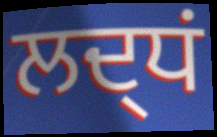
ਲਦ੍ਧਂ